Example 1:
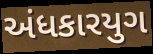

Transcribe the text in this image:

અંધકારયુગ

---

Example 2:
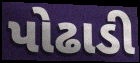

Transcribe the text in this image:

પોઢાડી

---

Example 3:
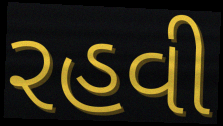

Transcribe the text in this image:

રહવી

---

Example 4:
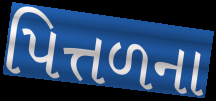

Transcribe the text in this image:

પિત્તળના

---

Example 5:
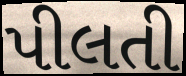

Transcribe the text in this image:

પીલતી